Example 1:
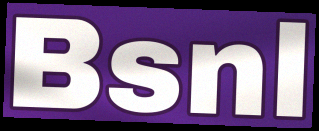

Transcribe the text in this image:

Bsnl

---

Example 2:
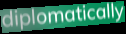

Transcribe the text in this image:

diplomatically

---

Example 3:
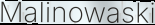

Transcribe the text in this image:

Malinowaski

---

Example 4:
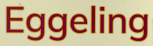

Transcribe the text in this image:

Eggeling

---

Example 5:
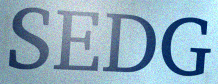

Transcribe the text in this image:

SEDG